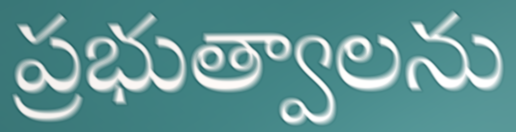
ప్రభుత్వాలను